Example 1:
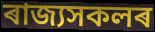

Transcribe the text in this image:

ৰাজ্যসকলৰ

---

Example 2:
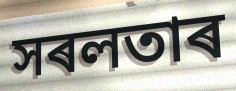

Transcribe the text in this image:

সৰলতাৰ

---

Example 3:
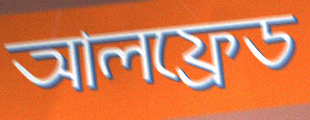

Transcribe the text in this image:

আলফ্ৰেড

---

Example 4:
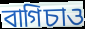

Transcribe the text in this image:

বাগিচাও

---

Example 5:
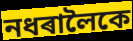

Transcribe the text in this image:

নধৰালৈকে